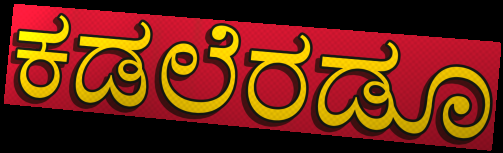
ಕಡಲೆರಡೂ